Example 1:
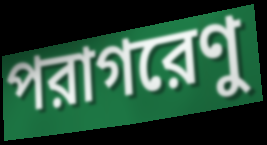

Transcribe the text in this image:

পরাগরেণু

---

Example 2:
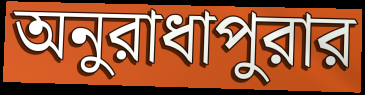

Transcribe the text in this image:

অনুরাধাপুরার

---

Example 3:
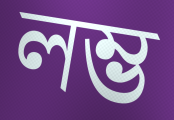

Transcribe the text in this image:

লম্ভ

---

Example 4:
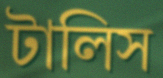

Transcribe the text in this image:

টালিস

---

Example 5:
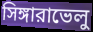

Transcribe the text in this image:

সিঙ্গারাভেলু